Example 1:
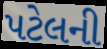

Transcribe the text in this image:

પટેલની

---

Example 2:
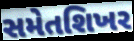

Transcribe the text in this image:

સમેતશિખર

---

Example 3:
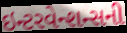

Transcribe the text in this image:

ઇન્ટરવેન્શન્સની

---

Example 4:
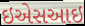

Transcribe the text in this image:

ઇએસઆઇ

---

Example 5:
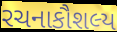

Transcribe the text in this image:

રચનાકૌશલ્ય